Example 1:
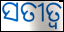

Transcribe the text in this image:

ସତୀତ୍ବ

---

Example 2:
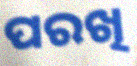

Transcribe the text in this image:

ପରଖି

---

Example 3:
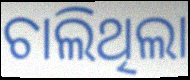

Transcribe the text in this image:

ଚାଲିଥିଲା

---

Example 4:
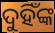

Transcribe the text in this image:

ଦୁହିଁଙ୍କ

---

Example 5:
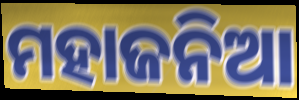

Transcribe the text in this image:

ମହାଜନିଆ